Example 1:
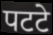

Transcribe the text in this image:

पटटे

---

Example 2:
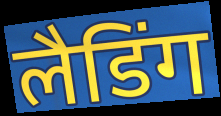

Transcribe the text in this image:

लैडिंग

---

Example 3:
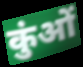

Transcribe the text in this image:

कुंओं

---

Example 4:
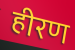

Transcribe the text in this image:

हीरण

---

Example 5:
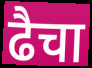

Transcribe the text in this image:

ढैचा